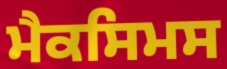
ਮੈਕਸਿਮਸ